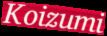
Koizumi